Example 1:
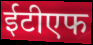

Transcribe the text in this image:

ईटीएफ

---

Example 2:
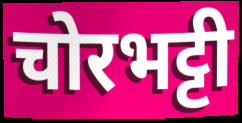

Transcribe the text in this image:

चोरभट्टी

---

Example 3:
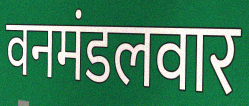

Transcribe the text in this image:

वनमंडलवार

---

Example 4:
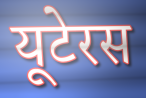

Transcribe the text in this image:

यूटेरस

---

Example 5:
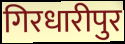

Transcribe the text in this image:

गिरधारीपुर